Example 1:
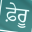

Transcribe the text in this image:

ਫ਼ੇਰੂ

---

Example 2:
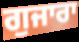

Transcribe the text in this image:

ਗੁਜਾਰਾ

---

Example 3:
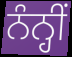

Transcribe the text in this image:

ਨੰਨ੍ਹੀਂ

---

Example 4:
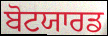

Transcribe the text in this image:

ਬੋਟਯਾਰਡ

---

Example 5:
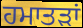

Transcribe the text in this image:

ਹਮਾਤੜਾਂ